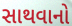
સાથવાનો